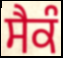
ਸੈਕੰ